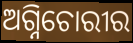
ଅଗ୍ନିଚୋରୀର